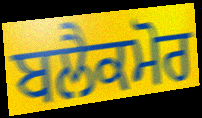
ਬਲੈਕਮੋਰ